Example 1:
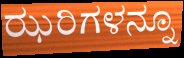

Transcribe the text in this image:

ಝರಿಗಳನ್ನೂ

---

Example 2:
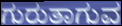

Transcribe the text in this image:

ಗುರುತಾಗುವ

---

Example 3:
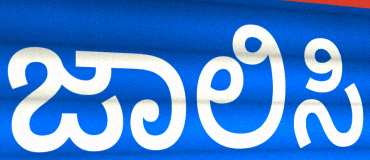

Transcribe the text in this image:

ಜಾಲಿಸಿ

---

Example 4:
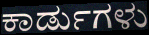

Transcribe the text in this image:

ಕಾರ್ಡುಗಳು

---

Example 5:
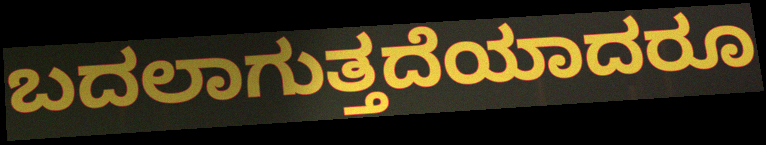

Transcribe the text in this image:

ಬದಲಾಗುತ್ತದೆಯಾದರೂ